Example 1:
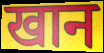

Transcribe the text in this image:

खान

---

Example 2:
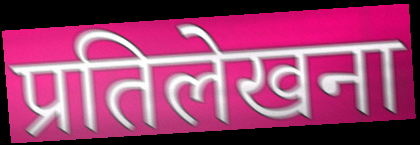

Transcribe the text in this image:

प्रतिलेखना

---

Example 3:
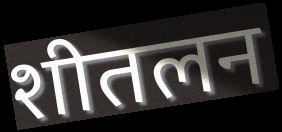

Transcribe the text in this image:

शीतलन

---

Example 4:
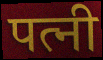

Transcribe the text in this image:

पत्‍नी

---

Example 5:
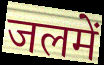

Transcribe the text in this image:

जलमें